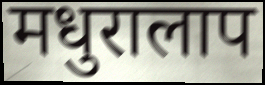
मधुरालाप